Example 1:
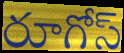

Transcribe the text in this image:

రూగోస్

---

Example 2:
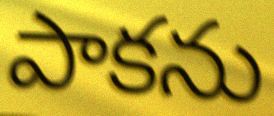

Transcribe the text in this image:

పాకను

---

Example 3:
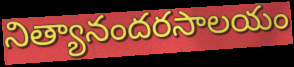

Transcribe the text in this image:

నిత్యానందరసాలయం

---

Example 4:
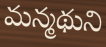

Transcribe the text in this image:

మన్మథుని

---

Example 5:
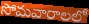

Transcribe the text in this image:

సోమవారాలలో